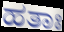
ಹತಾಃ